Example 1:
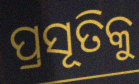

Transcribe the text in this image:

ପ୍ରସୂତିକୁ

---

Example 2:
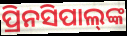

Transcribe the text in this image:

ପ୍ରିନସିପାଲ୍‍ଙ୍କ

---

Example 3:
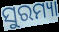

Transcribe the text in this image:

ସୁରମ୍ୟା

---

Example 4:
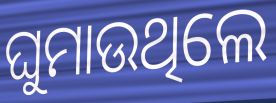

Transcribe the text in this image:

ଘୁମାଉଥିଲେ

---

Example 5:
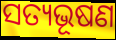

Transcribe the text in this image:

ସତ୍ୟଭୂଷଣ